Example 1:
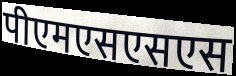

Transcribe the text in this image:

पीएमएसएसएस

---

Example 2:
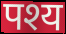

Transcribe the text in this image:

पश्य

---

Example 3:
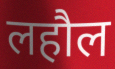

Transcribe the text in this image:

लहौल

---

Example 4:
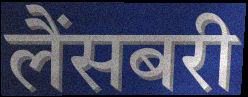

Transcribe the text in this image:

लैंसबरी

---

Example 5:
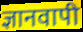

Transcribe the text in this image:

ज्ञानवापी